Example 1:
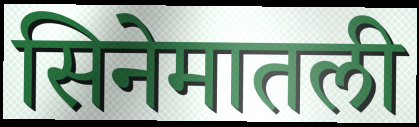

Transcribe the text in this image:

सिनेमातली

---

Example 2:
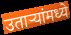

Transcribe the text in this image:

उतार्‍यांमध्ये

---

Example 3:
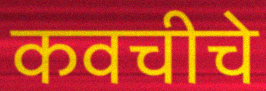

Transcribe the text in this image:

कवचीचे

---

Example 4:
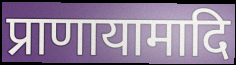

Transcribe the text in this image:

प्राणायामादि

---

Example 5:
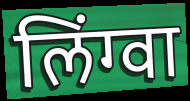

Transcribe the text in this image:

लिंग्वा